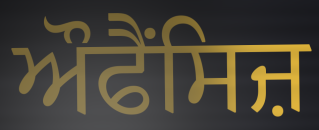
ਔਫੈਂਸਿਜ਼